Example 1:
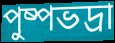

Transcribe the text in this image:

পুষ্পভদ্ৰা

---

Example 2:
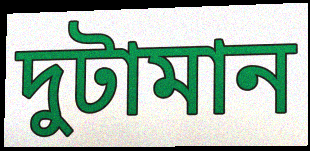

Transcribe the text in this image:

দুটামান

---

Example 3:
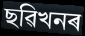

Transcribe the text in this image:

ছৱিখনৰ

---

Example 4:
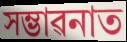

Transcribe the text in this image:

সম্ভাৱনাত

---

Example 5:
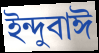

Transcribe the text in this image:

ইন্দুবাঈ